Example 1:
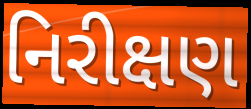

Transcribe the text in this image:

નિરીક્ષણ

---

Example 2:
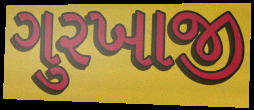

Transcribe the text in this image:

ગુરખાજી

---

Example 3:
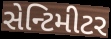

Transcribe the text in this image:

સેન્ટિમીટર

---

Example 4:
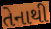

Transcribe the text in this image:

તેનાથી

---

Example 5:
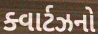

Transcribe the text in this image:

ક્વાર્ટઝનો